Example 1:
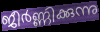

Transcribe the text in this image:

ജീർണ്ണിക്കുന്നു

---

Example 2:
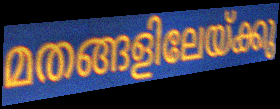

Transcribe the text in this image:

മതങ്ങളിലേയ്ക്കു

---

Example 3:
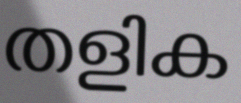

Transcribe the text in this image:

തളിക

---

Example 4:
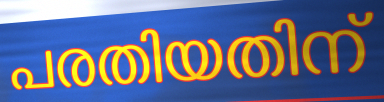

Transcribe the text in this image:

പരതിയതിന്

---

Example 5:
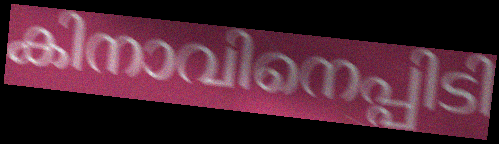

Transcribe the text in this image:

കിനാവിനെപ്പിടി